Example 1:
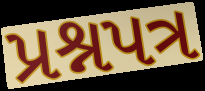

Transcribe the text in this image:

પ્રશ્નપત્ર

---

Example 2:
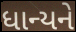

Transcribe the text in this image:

ધાન્યને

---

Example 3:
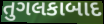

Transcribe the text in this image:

તુગલકાબાદ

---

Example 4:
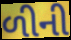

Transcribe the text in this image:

ળીની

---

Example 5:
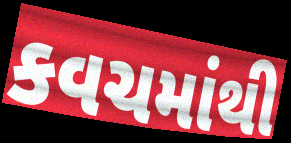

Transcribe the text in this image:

કવચમાંથી